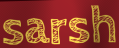
sarsh